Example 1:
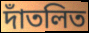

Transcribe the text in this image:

দাঁতলিত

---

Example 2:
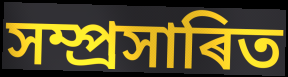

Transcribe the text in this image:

সম্প্ৰসাৰিত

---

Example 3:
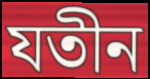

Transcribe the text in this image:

যতীন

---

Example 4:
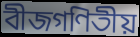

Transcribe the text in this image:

বীজগণিতীয়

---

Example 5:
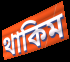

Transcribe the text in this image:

থাকিম